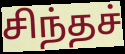
சிந்தச்